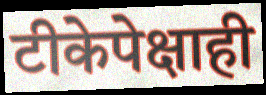
टीकेपेक्षाही